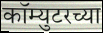
कॉम्युटरच्या